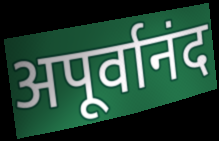
अपूर्वानंद